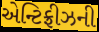
એન્ટિફ્રીઝની